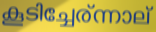
കൂടിച്ചേര്ന്നാല്